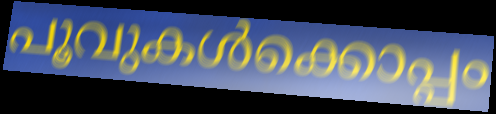
പൂവുകൾക്കൊപ്പം